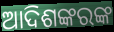
ଆଦିଶଙ୍କରଙ୍କ